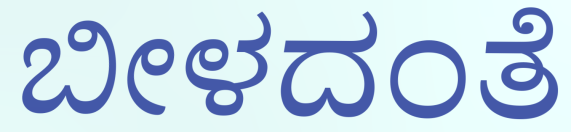
ಬೀಳದಂತೆ